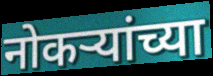
नोकर्‍यांच्या